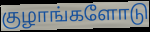
குழாங்களோடு